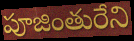
పూజింతురేని